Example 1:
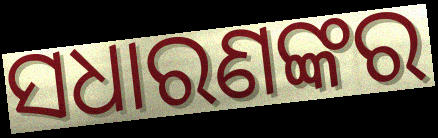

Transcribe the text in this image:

ସଧାରଣଙ୍କର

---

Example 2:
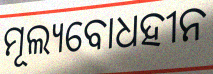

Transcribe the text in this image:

ମୂଲ୍ୟବୋଧହୀନ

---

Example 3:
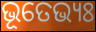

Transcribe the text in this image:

ଭୂତେଭ୍ୟଃ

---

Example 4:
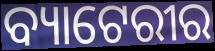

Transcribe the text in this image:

ବ୍ୟାଟେରୀର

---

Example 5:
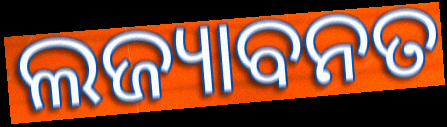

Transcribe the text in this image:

ଲଜ୍ୟାବନତ